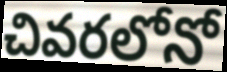
చివరలోనో